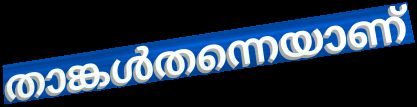
താങ്കൾതന്നെയാണ്